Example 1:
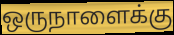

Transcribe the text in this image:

ஒருநாளைக்கு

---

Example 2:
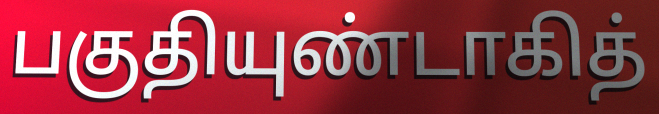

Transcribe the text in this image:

பகுதியுண்டாகித்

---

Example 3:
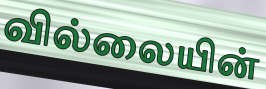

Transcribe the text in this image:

வில்லையின்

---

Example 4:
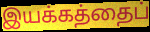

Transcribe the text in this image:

இயக்கத்தைப்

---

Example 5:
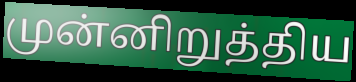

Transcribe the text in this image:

முன்னிறுத்திய